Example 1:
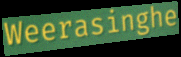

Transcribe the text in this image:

Weerasinghe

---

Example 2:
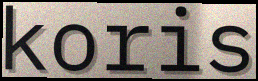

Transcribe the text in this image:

koris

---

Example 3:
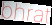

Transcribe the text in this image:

bhrat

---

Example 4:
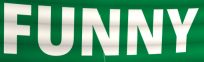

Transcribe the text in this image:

FUNNY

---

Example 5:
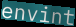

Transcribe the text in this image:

envint